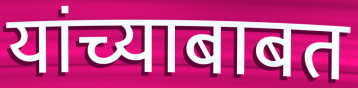
यांच्याबाबत